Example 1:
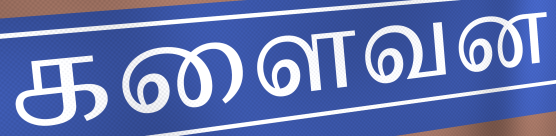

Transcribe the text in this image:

களைவன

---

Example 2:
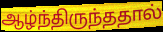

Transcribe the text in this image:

ஆழ்ந்திருந்ததால்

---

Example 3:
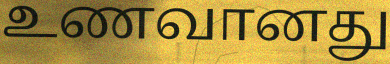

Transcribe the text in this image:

உணவானது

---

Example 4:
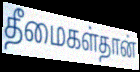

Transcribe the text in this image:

தீமைகள்தான்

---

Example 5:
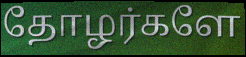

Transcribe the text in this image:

தோழர்களே